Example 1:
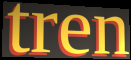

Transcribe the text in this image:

tren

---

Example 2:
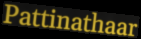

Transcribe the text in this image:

Pattinathaar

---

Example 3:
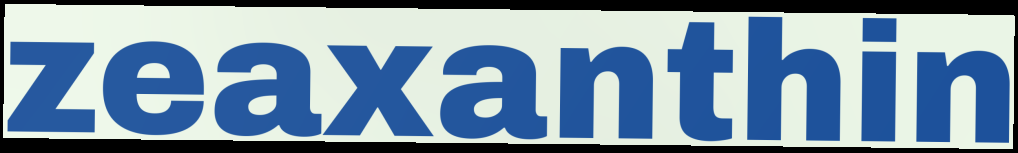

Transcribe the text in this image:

zeaxanthin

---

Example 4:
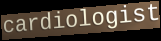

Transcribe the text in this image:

cardiologist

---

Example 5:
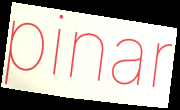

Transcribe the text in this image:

pinar